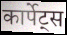
कार्पेट्स